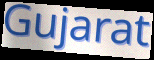
Gujarat